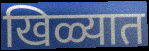
खिळ्यात